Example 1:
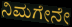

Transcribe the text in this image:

ನಿಮಗೇನೇ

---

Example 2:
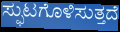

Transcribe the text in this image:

ಸ್ಫುಟಗೊಳಿಸುತ್ತದೆ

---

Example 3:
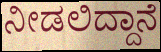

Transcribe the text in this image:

ನೀಡಲಿದ್ದಾನೆ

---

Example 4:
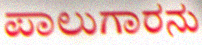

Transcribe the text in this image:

ಪಾಲುಗಾರನು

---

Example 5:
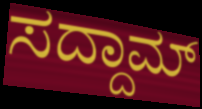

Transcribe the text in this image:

ಸದ್ದಾಮ್